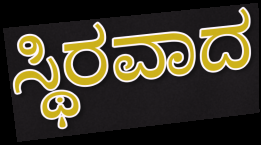
ಸ್ಥಿರವಾದ